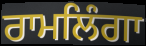
ਰਾਮਲਿੰਗਾ